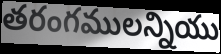
తరంగములన్నియు